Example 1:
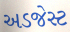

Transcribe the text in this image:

અડજેસ્ટ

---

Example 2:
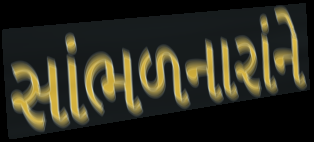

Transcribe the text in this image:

સાંભળનારાંને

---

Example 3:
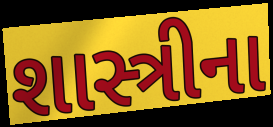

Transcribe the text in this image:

શાસ્ત્રીના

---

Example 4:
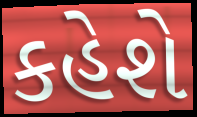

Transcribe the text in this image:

કહેશે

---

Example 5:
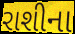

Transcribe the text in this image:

રાશીના